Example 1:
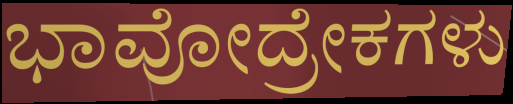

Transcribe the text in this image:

ಭಾವೋದ್ರೇಕಗಳು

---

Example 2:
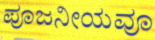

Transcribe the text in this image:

ಪೂಜನೀಯವೂ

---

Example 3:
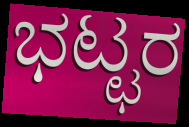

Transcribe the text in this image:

ಭಟ್ಟರ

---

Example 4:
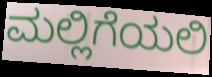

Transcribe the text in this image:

ಮಲ್ಲಿಗೆಯಲಿ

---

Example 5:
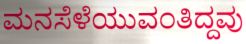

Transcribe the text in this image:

ಮನಸೆಳೆಯುವಂತಿದ್ದವು